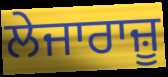
ਲੇਜਾਰਾਜ਼ੂ